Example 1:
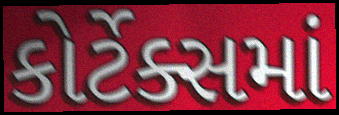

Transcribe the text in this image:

કોર્ટેક્સમાં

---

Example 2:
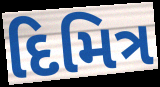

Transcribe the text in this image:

દિમિત્ર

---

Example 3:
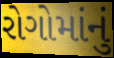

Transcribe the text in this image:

રોગોમાંનું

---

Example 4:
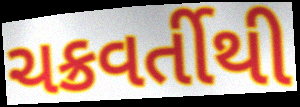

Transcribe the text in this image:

ચક્રવર્તીથી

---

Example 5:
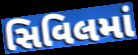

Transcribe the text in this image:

સિવિલમાં